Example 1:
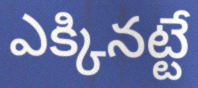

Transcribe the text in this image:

ఎక్కినట్టే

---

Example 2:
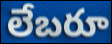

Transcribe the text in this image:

లేబరూ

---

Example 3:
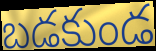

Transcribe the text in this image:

బడకుండ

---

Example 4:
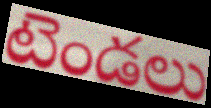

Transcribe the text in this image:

టెండలు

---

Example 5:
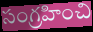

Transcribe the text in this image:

సంగ్రహించి